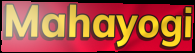
Mahayogi